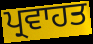
ਪ੍ਰਵਾਹਤ